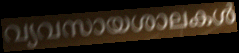
വ്യവസായശാലകൾ